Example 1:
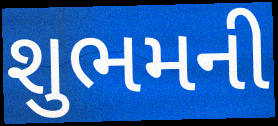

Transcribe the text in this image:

શુભમની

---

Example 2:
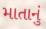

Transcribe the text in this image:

માતાનું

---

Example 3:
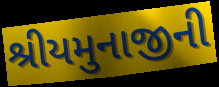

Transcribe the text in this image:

શ્રીયમુનાજીની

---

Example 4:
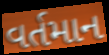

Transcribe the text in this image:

વર્તમાન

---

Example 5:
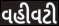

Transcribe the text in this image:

વહીવટી